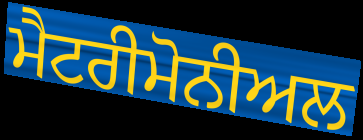
ਮੈਟਰੀਮੋਨੀਅਲ